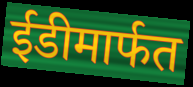
ईडीमार्फत